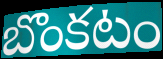
బొంకటం